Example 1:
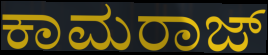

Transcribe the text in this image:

ಕಾಮರಾಜ್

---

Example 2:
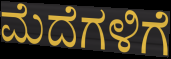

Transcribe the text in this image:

ಮೆದೆಗಳಿಗೆ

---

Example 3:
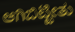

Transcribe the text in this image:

ಆಗಿಬಿಟ್ಟೀತು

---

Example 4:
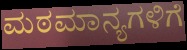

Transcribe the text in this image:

ಮಠಮಾನ್ಯಗಳಿಗೆ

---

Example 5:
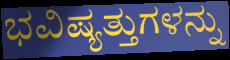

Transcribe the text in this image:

ಭವಿಷ್ಯತ್ತುಗಳನ್ನು